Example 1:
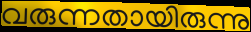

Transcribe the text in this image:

വരുന്നതായിരുന്നു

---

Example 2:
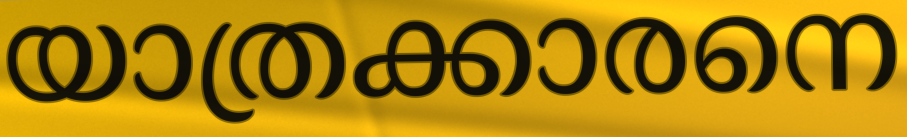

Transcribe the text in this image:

യാത്രക്കാരനെ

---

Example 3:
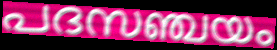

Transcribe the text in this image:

പദസഞ്ചയം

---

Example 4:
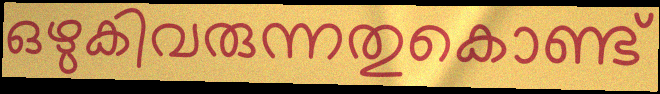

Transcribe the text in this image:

ഒഴുകിവരുന്നതുകൊണ്ട്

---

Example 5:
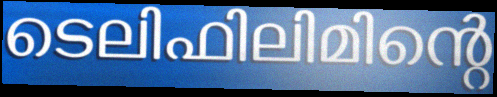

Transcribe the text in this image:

ടെലിഫിലിമിന്റെ